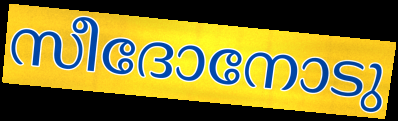
സീദോനോടു